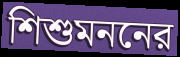
শিশুমননের